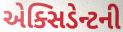
એક્સિડેન્ટની